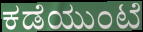
ಕಡೆಯುಂಟೆ